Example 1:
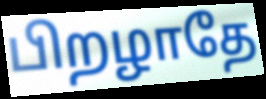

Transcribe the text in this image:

பிறழாதே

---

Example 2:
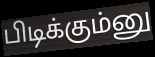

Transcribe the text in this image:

பிடிக்கும்னு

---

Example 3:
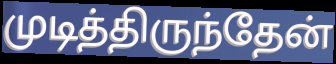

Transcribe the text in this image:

முடித்திருந்தேன்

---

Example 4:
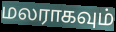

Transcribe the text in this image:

மலராகவும்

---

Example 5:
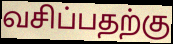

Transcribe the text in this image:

வசிப்பதற்கு